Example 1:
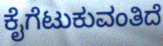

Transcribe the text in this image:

ಕೈಗೆಟುಕುವಂತಿದೆ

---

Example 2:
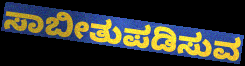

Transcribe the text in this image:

ಸಾಬೀತುಪಡಿಸುವ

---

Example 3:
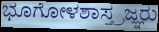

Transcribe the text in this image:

ಭೂಗೋಳಶಾಸ್ತ್ರಜ್ಞರು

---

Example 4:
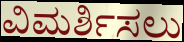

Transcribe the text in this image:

ವಿಮರ್ಶಿಸಲು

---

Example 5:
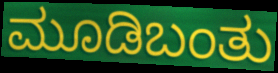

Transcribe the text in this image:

ಮೂಡಿಬಂತು